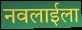
नवलाईला